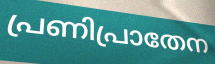
പ്രണിപ്രാതേന